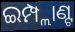
ଇମ୍ପ୍ଲାଣ୍ଟ